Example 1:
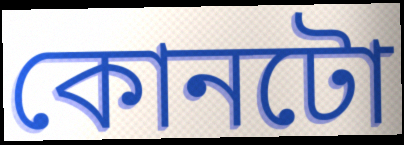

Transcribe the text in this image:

কোনটো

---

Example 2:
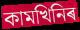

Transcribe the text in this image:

কামখিনিৰ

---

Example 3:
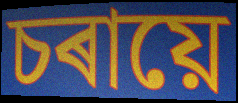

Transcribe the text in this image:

চৰায়ে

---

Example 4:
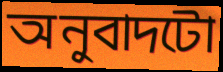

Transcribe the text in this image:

অনুবাদটো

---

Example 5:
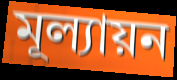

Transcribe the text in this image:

মূল্যায়ন